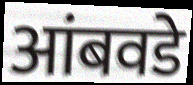
आंबवडे